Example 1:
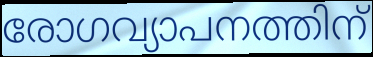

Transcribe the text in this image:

രോഗവ്യാപനത്തിന്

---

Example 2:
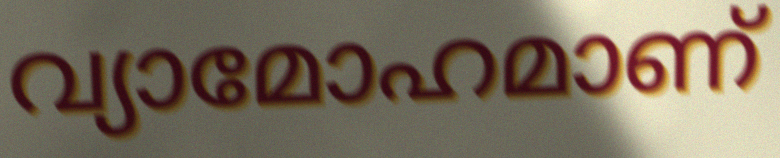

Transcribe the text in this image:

വ്യാമോഹമാണ്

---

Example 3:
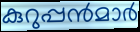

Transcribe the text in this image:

കുറുപ്പൻമാർ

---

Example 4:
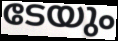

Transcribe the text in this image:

ടേയും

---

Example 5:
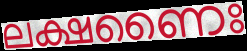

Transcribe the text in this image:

ലക്ഷണൈഃ